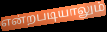
என்றபடியாலும்